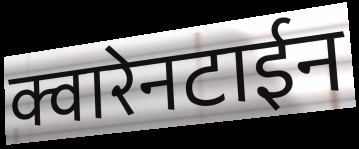
क्वारेनटाईन